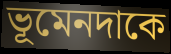
ভূমেনদাকে